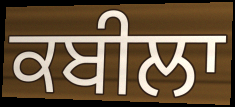
ਕਬੀਲਾ